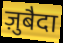
ज़ुबैदा